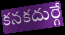
కనకదుర్గే